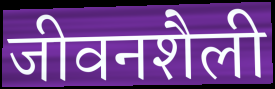
जीवनशैली